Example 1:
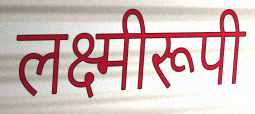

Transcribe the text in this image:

लक्ष्मीरूपी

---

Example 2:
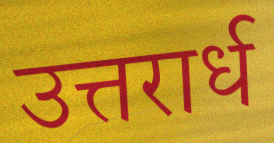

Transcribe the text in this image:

उत्तरार्ध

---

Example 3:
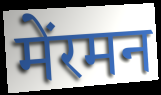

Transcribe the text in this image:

मेंरमन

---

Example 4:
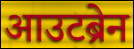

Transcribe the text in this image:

आउटब्रेन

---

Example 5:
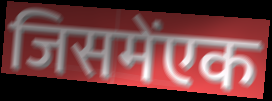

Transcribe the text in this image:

जिसमेंएक